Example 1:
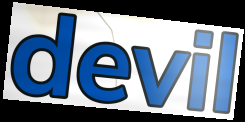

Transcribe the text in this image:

devil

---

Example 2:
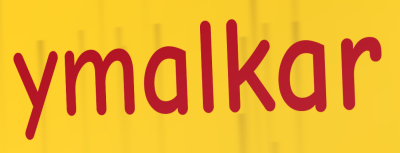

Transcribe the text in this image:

ymalkar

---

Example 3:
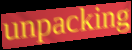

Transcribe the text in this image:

unpacking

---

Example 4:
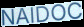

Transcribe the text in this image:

NAIDOC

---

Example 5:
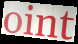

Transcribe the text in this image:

oint